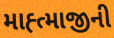
માહ્ત્માજીની